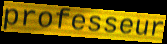
professeur